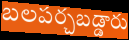
బలపర్చబడ్డారు